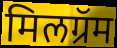
मिलग्रॅम